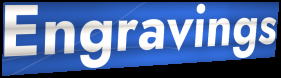
Engravings